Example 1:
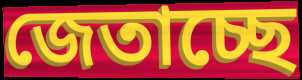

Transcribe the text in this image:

জেতাচ্ছে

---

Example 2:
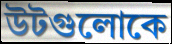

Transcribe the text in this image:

উটগুলোকে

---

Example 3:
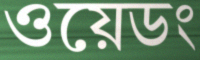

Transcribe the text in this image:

ওয়েডং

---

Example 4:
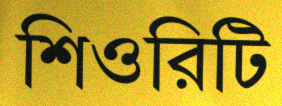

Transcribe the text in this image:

শিওরিটি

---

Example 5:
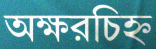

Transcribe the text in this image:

অক্ষরচিহ্ন